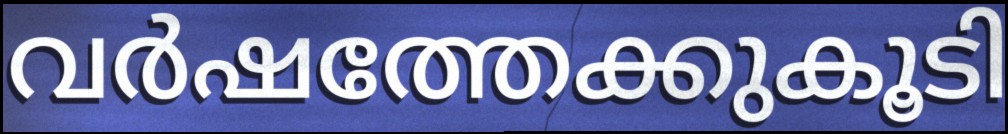
വർഷത്തേക്കുകൂടി